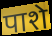
पाशे